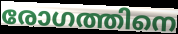
രോഗത്തിനെ